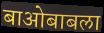
बाओबाबला